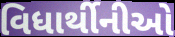
વિધાર્થીનીઓ